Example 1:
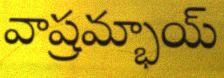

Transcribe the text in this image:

వాష్రమ్భాయ్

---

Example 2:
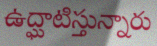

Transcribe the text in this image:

ఉద్ఘాటిస్తున్నారు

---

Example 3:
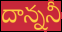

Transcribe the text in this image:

దాన్ననీ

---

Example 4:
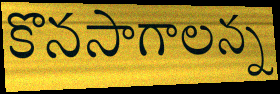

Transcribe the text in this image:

కొనసాగాలన్న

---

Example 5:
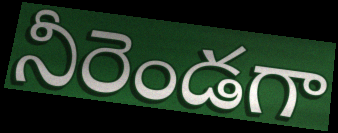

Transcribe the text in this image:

నీరెండగా